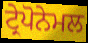
ਟ੍ਰੇਪੋਨੇਮਲ